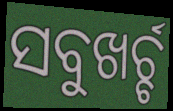
ସବୁଖର୍ଚ୍ଚ